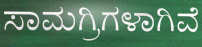
ಸಾಮಗ್ರಿಗಳಾಗಿವೆ